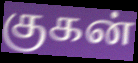
குகன்